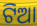
ଟିଆ